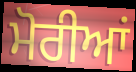
ਮੋਰੀਆਂ